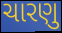
ચારણુ